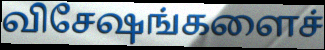
விசேஷங்களைச்